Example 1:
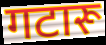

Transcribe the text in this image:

गटारू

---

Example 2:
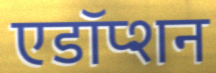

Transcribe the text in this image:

एडॉप्शन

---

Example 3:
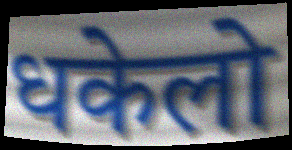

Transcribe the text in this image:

धकेलो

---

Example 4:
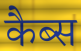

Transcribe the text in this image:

कैब्स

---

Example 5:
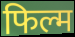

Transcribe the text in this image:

फिल्‍म